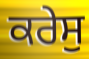
ਕਰੇਸੁ